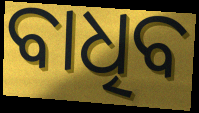
ବାଧିବ